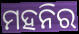
ମହନିର